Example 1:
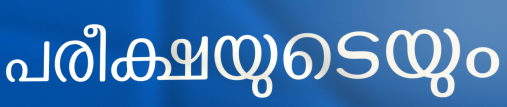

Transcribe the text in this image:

പരീക്ഷയുടെയും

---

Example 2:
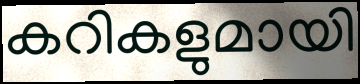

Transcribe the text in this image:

കറികളുമായി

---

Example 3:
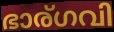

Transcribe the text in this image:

ഭാര്ഗവി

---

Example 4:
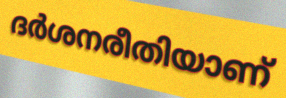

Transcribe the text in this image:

ദർശനരീതിയാണ്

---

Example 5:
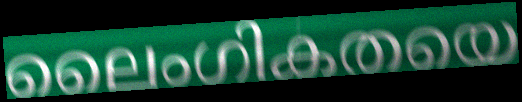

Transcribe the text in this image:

ലൈംഗികതയെ